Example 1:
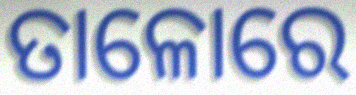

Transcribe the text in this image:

ତାଳୋରେ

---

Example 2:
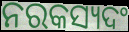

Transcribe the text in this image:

ନରକସ୍ୟଦଂ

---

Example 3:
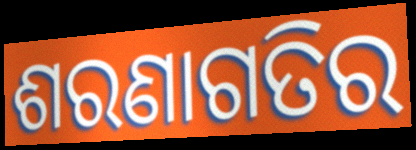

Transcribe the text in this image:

ଶରଣାଗତିର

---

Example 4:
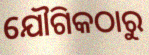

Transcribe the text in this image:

ଯୌଗିକଠାରୁ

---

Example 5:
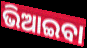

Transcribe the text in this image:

ଭିଆଇବା